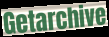
Getarchive